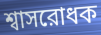
শ্বাসরোধক